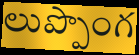
లుప్పొంగ